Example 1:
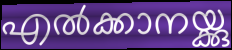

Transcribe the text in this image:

എൽക്കാനയ്ക്കു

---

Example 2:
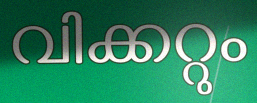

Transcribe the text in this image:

വിക്കറ്റും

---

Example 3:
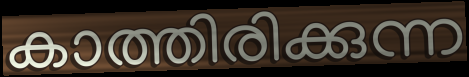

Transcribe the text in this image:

കാത്തിരിക്കുന്ന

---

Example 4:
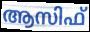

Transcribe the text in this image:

ആസിഫ്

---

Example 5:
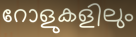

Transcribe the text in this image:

റോളുകളിലും